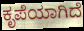
ಕೃಪೆಯಾಗಿದೆ